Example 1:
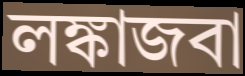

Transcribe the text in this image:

লঙ্কাজবা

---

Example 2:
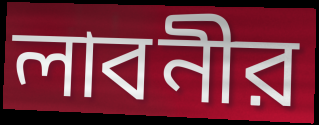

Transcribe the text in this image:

লাবনীর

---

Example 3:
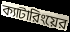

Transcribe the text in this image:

ক্যাটারিংয়ের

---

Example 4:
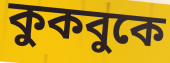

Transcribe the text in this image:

কুকবুকে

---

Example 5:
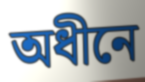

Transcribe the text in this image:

অধীনে